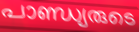
പാണ്ഡ്യരുടെ